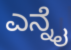
ಎನ್ನೈ